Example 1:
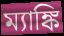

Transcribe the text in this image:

ম্যাঙ্কি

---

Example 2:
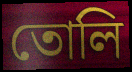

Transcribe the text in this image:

তোলি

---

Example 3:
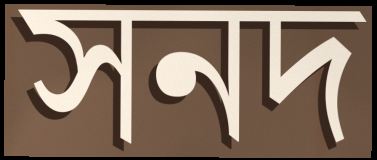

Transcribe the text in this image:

সনদ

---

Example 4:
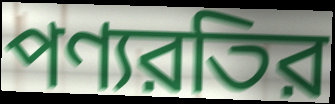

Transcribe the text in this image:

পণ্যরতির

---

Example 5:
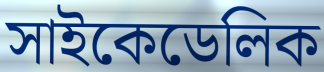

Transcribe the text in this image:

সাইকেডেলিক